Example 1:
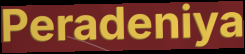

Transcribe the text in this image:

Peradeniya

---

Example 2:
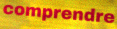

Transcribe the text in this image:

comprendre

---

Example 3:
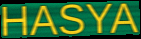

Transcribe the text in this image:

HASYA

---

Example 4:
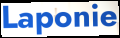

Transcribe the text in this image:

Laponie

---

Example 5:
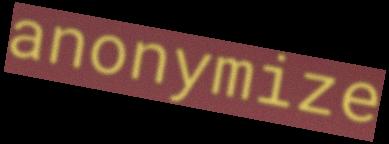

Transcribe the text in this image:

anonymize